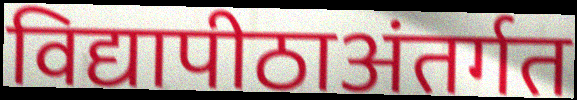
विद्यापीठाअंतर्गत